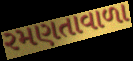
રમણતાવાળા